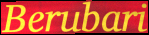
Berubari